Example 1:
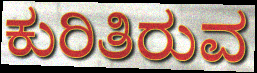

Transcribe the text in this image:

ಕುರಿತಿರುವ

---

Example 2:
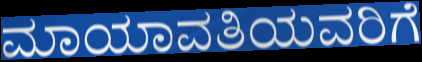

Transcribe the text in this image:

ಮಾಯಾವತಿಯವರಿಗೆ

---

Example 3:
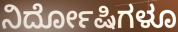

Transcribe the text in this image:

ನಿರ್ದೋಷಿಗಳೂ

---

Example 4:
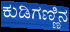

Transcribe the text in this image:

ಕುಡಿಗಣ್ಣಿನ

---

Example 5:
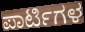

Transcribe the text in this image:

ಪಾರ್ಟಿಗಳ